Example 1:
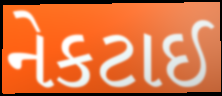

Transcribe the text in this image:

નેકટાઈ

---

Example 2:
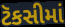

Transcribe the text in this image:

ટૅકસીમાં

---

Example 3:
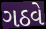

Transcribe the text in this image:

ગઠવે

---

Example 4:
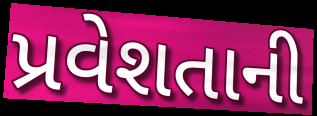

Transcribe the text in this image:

પ્રવેશતાની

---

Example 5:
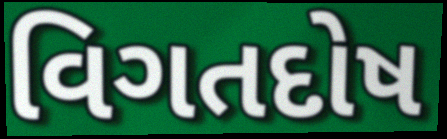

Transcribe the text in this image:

વિગતદોષ